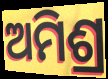
ଅମିଶ୍ର